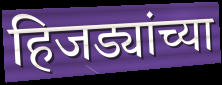
हिजड्यांच्या